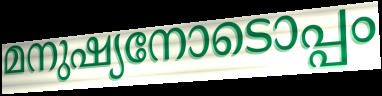
മനുഷ്യനോടൊപ്പം